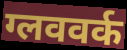
ग्लववर्क